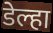
डेल्हा